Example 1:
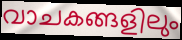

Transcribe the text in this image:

വാചകങ്ങളിലും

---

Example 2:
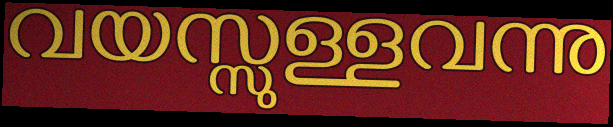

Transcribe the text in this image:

വയസ്സുള്ളവന്നു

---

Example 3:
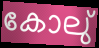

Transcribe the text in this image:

കോലു്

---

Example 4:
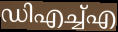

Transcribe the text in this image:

ഡിഎച്ച്എ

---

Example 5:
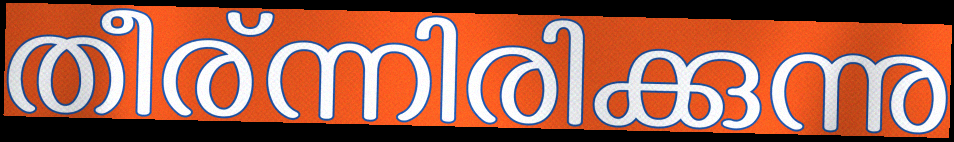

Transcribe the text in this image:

തീര്ന്നിരിക്കുന്നു